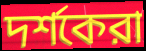
দর্শকেরা